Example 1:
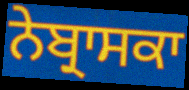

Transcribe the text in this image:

ਨੇਬ੍ਰਾਸਕਾ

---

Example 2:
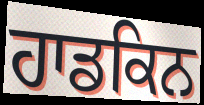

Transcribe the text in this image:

ਹਾਡਕਿਨ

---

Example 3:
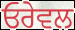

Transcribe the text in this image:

ਓਰੇਵਲ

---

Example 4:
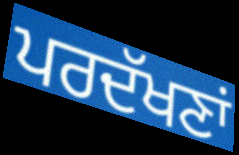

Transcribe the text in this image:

ਪਰਦੱਖਣਾਂ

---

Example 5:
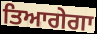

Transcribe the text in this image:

ਤਿਆਗੇਗਾ